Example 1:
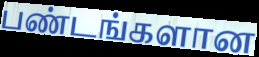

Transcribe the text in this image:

பண்டங்களான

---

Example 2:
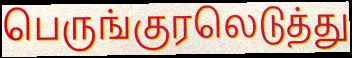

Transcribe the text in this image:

பெருங்குரலெடுத்து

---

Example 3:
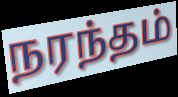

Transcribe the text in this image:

நரந்தம்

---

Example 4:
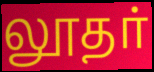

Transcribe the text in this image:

லூதர்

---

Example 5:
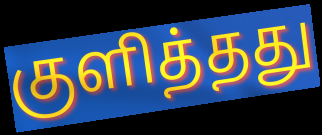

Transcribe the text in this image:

குளித்தது